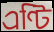
এণ্টি